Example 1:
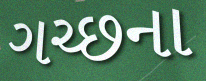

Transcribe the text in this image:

ગચ્છના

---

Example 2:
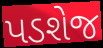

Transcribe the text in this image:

પડશેજ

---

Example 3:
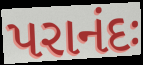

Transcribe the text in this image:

પરાનંદઃ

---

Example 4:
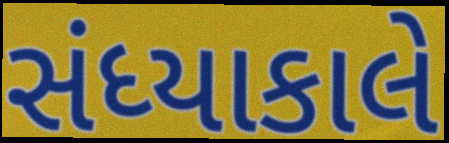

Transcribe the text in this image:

સંધ્યાકાલે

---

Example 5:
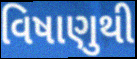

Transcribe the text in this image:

વિષાણુથી